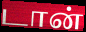
டான்